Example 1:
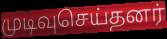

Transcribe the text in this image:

முடிவுசெய்தனர்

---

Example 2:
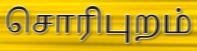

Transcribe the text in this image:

சொரிபுறம்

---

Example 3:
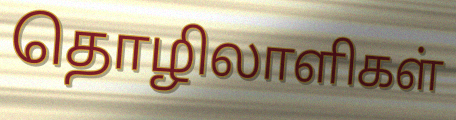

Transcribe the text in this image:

தொழிலாளிகள்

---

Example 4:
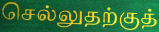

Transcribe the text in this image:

செல்லுதற்குத்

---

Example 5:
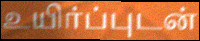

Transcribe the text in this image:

உயிர்ப்புடன்